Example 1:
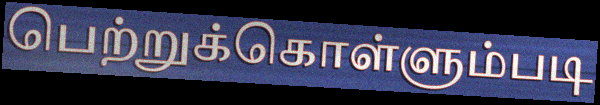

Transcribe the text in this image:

பெற்றுக்கொள்ளும்படி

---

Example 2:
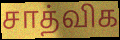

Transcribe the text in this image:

சாத்விக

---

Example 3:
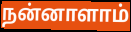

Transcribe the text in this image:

நன்னாளாம்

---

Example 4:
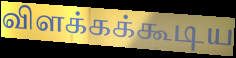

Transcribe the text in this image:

விளக்கக்கூடிய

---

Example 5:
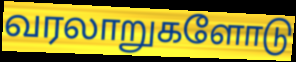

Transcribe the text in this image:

வரலாறுகளோடு